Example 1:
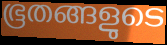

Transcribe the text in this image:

ഭൂതങ്ങളുടെ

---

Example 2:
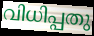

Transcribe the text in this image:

വിധിപ്പതു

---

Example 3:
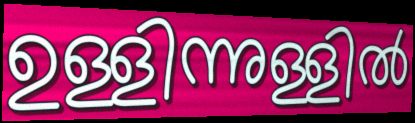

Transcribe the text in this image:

ഉള്ളിന്നുള്ളിൽ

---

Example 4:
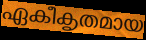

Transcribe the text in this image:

ഏകീകൃതമായ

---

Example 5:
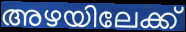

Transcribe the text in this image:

അഴയിലേക്ക്